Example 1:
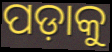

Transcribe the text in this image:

ପଡ଼ାକୁ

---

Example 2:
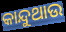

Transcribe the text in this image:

କାନ୍ଦୁଥାଉ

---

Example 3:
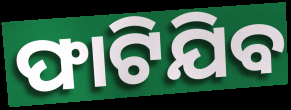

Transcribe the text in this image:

ଫାଟିଯିବ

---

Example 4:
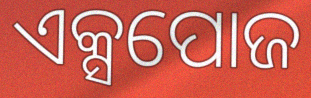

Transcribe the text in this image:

ଏକ୍ସପୋଜ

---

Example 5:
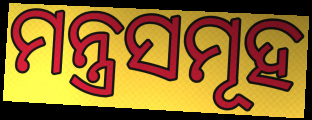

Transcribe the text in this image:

ମନ୍ତ୍ରସମୂହ